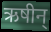
ऋषीन्